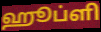
ஹூப்ளி